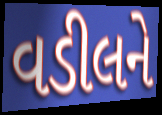
વડીલને